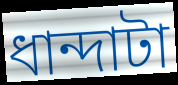
ধান্দাটা